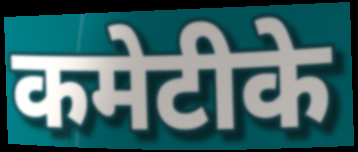
कमेटीके